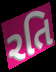
રતિ